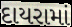
દાયરામાં